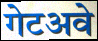
गेटअवे